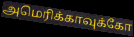
அமெரிக்காவுக்கோ